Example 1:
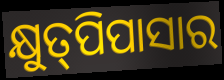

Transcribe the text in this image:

କ୍ଷୁତ୍‌ପିପାସାର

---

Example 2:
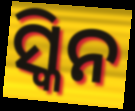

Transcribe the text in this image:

ସ୍କିନ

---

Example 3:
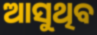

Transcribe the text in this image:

ଆସୁଥିବ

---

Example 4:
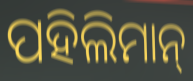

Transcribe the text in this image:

ପହିଲିମାନ୍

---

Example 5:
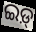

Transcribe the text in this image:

ଇଡ଼୍